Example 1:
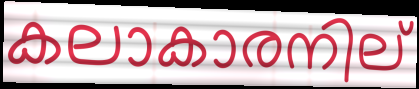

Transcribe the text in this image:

കലാകാരനില്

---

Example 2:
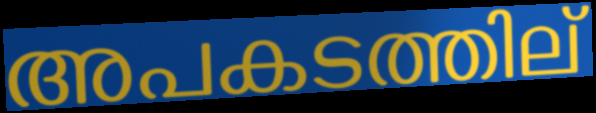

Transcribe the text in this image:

അപകടത്തില്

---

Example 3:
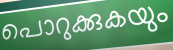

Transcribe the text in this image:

പൊറുക്കുകയും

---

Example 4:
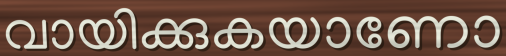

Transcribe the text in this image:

വായിക്കുകയാണോ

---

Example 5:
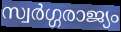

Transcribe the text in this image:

സ്വർഗ്ഗരാജ്യം